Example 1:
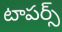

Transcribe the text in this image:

టాపర్స్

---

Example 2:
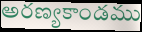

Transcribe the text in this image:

అరణ్యకాండము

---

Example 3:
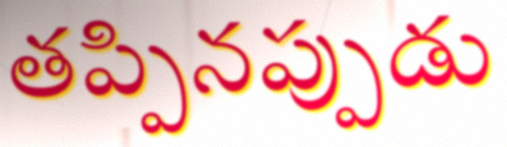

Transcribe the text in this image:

తప్పినప్పుడు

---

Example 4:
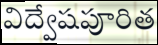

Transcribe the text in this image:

విద్వేషపూరిత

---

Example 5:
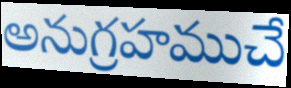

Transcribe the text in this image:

అనుగ్రహముచే